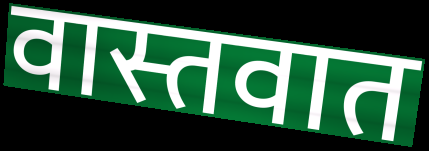
वास्तवात